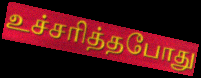
உச்சரித்தபோது